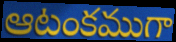
ఆటంకముగా